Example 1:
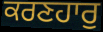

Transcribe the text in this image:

ਕਰਣਹਾਰੁ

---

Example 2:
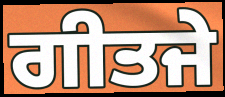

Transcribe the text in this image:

ਗੀਤਜੇ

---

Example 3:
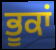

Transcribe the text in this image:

ਭੂਕਾਂ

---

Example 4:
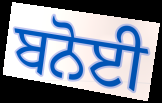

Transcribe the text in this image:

ਬਨੋਈ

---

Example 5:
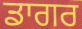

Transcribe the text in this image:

ਡਾਗਰ